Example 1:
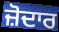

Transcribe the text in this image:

ਜ਼ੋਦਾਰ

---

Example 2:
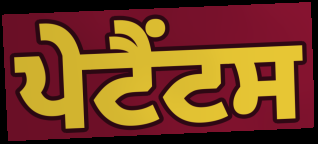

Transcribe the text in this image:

ਪੇਟੈਂਟਸ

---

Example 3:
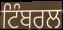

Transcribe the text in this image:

ਟਿੰਬਰਲ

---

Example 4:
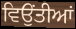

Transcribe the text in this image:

ਵਿਉਂਤੀਆਂ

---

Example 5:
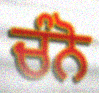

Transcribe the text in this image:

ਚੰਨੋ